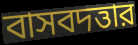
বাসবদত্তার